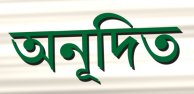
অনূদিত